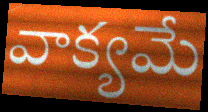
వాక్యమే